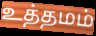
உத்தமம்